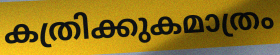
കത്രിക്കുകമാത്രം